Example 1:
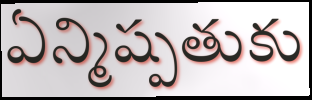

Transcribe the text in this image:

ఏన్మిష్పతుకు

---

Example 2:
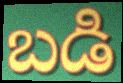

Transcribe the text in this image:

బడి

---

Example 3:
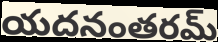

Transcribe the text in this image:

యదనంతరమ్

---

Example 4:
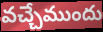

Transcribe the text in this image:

వచ్చేముందు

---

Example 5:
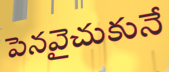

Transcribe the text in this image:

పెనవైచుకునే